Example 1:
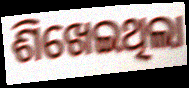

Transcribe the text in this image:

ଶିଖେଇଥିଲା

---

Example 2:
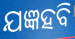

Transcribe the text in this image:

ଯଜ୍ଞହବି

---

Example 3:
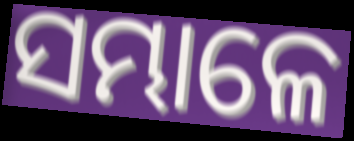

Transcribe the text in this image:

ସମ୍ଭାଳେ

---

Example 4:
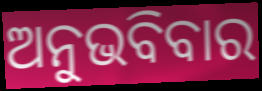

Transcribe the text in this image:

ଅନୁଭବିବାର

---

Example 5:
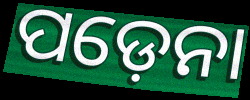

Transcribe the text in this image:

ପଡ଼େନା